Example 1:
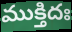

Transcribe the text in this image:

ముక్తిదః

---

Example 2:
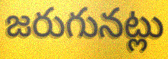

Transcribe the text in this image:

జరుగునట్లు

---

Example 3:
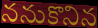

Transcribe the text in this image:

ననుకొనిన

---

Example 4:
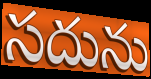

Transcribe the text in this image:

సదును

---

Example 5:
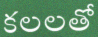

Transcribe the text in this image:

కలలతో